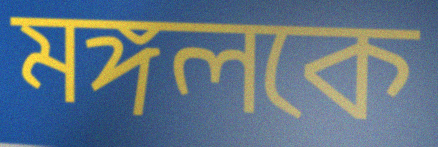
মঙ্গলকে